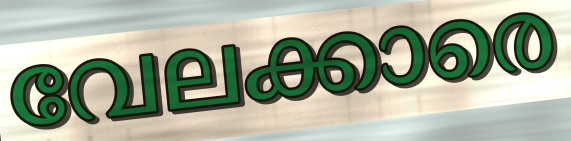
വേലക്കാരെ